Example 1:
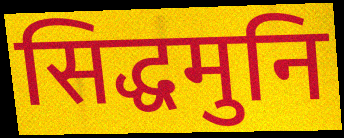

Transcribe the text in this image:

सिद्धमुनि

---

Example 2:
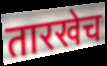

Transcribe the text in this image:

तारखेच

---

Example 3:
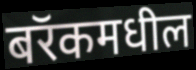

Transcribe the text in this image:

बरॅकमधील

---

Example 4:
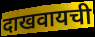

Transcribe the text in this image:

दाखवायची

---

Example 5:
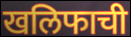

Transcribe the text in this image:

खलिफाची